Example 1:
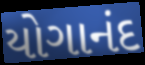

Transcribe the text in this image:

યોગાનંદ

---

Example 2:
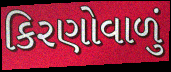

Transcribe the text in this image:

કિરણોવાળું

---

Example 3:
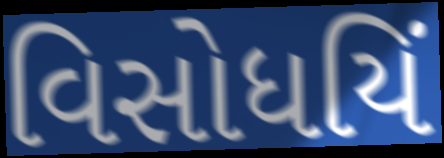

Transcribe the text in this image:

વિસોધયિં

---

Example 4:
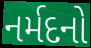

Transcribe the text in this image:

નર્મદનો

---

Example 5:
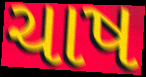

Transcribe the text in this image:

ચાષ